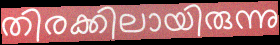
തിരക്കിലായിരുന്നു